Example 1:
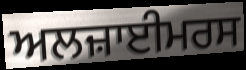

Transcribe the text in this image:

ਅਲਜ਼ਾਈਮਰਸ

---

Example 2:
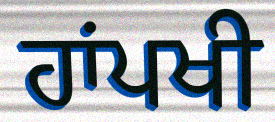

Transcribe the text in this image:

ਹਾਂਪਖੀ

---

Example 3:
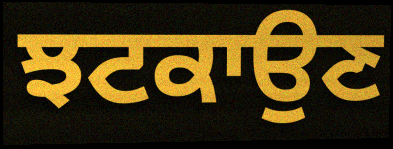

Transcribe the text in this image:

ਝਟਕਾਉਣ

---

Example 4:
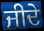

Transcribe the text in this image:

ਜੀਦੇ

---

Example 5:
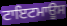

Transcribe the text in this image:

ਟਾਇਟਮਾਊਸ